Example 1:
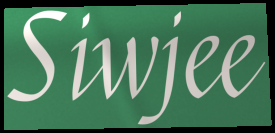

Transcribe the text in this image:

Siwjee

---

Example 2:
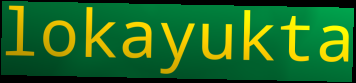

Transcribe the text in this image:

lokayukta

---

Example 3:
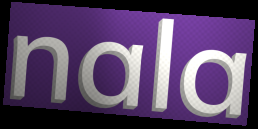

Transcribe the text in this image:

nala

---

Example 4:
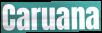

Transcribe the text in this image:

Caruana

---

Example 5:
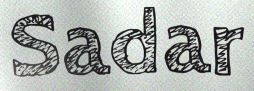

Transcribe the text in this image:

Sadar